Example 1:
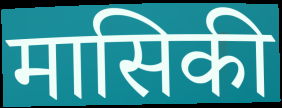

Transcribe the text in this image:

मासिकी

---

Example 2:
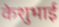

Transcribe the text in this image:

केशुभाई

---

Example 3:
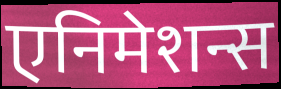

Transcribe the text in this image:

एनिमेशन्स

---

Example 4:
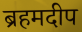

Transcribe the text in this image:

ब्रहमदीप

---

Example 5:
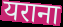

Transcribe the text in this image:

यराना